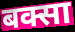
बक्सा